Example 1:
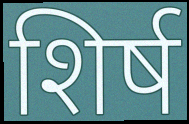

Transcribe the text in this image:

शिर्ष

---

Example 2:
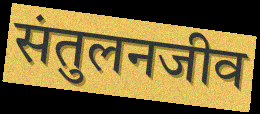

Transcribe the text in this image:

संतुलनजीव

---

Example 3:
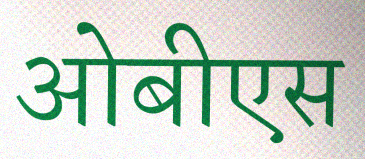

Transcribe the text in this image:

ओबीएस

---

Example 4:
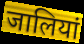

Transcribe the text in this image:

जालियां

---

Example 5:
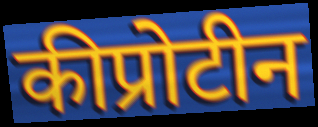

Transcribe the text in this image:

कीप्रोटीन